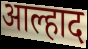
आल्हाद